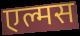
एल्मस